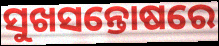
ସୁଖସନ୍ତୋଷରେ